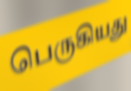
பெருகியது